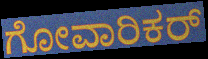
ಗೋವಾರಿಕರ್